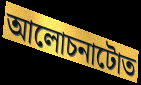
আলোচনাটোত